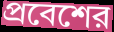
প্রবেশের